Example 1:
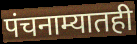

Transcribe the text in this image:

पंचनाम्यातही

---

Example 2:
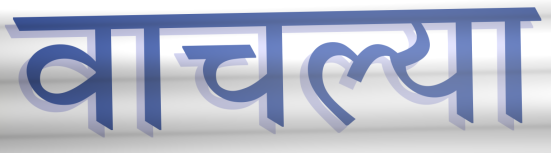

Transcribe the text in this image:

वाचल्या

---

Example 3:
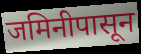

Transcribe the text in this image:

जमिनीपासून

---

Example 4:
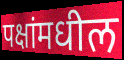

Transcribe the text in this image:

पक्षांमधील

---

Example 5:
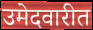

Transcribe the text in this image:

उमेदवारीत